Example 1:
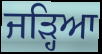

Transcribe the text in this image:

ਜੜ੍ਹਿਆ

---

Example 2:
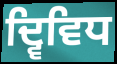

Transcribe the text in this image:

ਦ੍ਵਿਵਿਧ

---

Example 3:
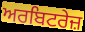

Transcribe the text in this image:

ਅਰਬਿਟਰੇਜ਼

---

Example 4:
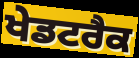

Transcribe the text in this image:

ਖੇਡਟਰੈਕ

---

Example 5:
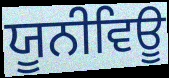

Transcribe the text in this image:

ਯੂਨੀਵਿਊ